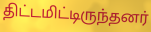
திட்டமிட்டிருந்தனர்